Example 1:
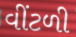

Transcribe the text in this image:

વીંટળી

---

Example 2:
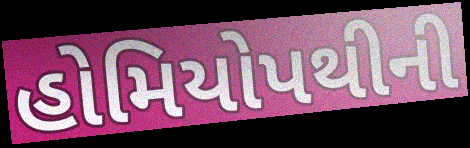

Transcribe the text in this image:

હોમિયોપથીની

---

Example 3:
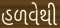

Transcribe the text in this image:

હળવેથી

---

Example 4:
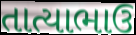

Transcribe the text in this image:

તાત્યાભાઉ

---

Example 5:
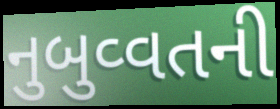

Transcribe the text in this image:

નુબુવ્વતની